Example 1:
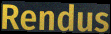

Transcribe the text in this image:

Rendus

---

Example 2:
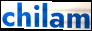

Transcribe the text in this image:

chilam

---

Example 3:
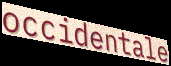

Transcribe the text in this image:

occidentale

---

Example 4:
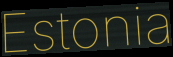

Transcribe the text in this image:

Estonia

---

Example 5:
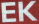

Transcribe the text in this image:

EK